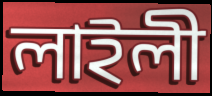
লাইলী